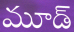
మూడ్